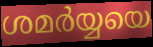
ശമർയ്യയെ